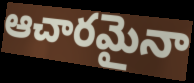
ఆచారమైనా